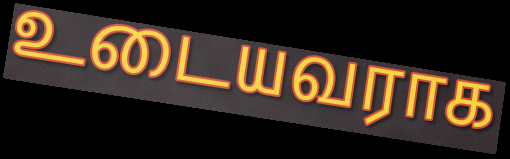
உடையவராக